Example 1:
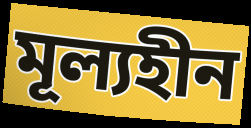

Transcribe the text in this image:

মূল্যহীন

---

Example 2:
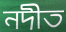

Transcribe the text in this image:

নদীত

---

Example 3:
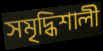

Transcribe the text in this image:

সমৃদ্ধিশালী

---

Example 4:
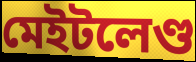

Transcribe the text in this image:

মেইটলেণ্ড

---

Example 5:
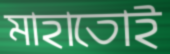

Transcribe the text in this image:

মাহাতোই